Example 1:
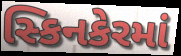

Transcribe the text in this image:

સ્કિનકેરમાં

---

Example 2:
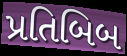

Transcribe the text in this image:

પ્રતિબિબ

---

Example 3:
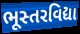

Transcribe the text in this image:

ભૂસ્તરવિદ્યા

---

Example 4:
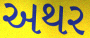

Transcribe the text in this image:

અથર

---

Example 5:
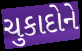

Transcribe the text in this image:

ચુકાદોને